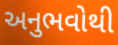
અનુભવોથી